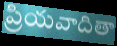
ప్రియవాదితా